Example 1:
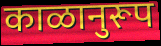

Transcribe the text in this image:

काळानुरूप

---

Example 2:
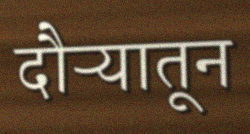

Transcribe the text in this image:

दौऱ्यातून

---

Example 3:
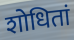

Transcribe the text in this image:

शोधितां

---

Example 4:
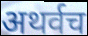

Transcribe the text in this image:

अथर्वच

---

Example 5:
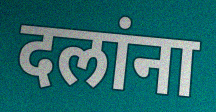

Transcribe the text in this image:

दलांना